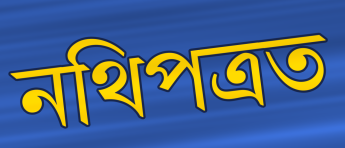
নথিপত্ৰত